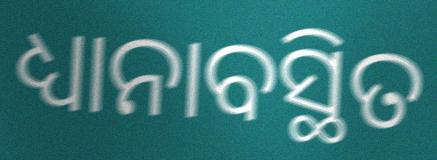
ଧ୍ୟାନାବସ୍ଥିତ